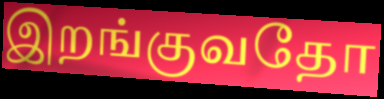
இறங்குவதோ